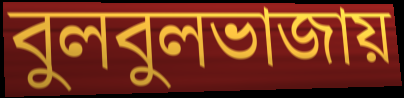
বুলবুলভাজায়